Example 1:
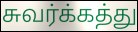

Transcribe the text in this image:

சுவர்க்கத்து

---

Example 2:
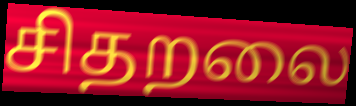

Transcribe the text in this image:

சிதறலை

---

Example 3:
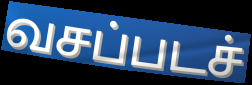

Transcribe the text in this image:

வசப்படச்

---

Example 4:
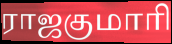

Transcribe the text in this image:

ராஜகுமாரி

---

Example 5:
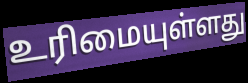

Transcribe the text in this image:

உரிமையுள்ளது